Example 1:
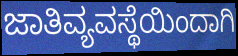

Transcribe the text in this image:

ಜಾತಿವ್ಯವಸ್ಥೆಯಿಂದಾಗಿ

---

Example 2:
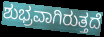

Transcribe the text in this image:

ಶುಭ್ರವಾಗಿರುತ್ತದೆ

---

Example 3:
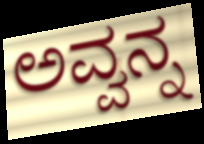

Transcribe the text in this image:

ಅವ್ವನ್ನ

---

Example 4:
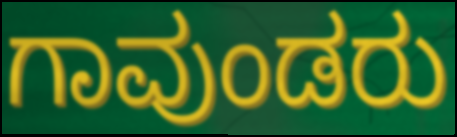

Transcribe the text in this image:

ಗಾವುಂಡರು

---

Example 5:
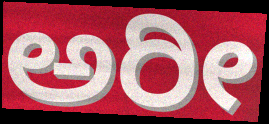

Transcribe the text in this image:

ಅರೀ